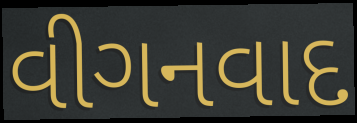
વીગનવાદ